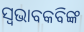
ସ୍ଵଭାବକବିଙ୍କ